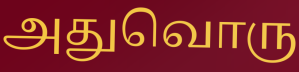
அதுவொரு